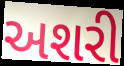
અશરી